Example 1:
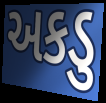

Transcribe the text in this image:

અકડુ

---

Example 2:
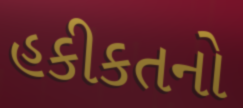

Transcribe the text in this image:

હકીકતનો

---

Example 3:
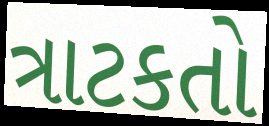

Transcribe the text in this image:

ત્રાટકતો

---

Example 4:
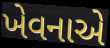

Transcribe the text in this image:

ખેવનાએ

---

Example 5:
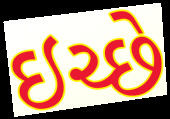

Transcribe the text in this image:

ઇચ્છે